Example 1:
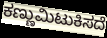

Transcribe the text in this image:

ಕಣ್ಣುಮಿಟುಕಿಸದೆ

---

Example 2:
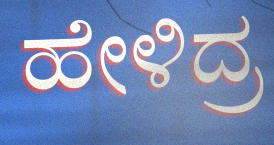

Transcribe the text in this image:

ಹೇಳಿದ್ರ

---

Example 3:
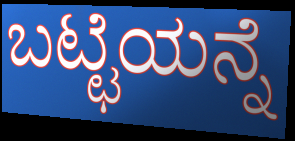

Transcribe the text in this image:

ಬಟ್ಟೆಯನ್ನೆ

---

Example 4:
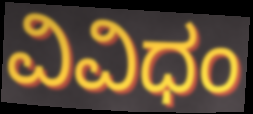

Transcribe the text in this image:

ವಿವಿಧಂ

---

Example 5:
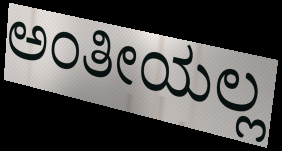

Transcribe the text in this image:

ಅಂತೀಯಲ್ಲ